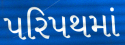
પરિપથમાં